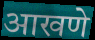
आखणे